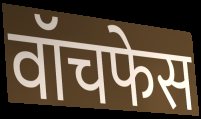
वॉचफेस